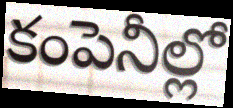
కంపెనీల్లో